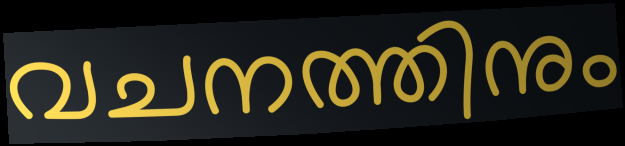
വചനത്തിനും